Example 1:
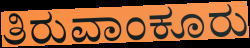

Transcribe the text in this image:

ತಿರುವಾಂಕೂರು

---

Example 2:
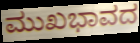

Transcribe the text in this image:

ಮುಖಭಾವದ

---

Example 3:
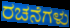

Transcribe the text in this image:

ರಚನೆಗಳು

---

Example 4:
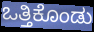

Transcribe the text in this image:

ಒತ್ತಿಕೊಂಡು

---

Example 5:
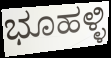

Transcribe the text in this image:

ಭೂಹಳ್ಳಿ